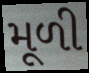
મૂળી